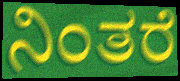
ನಿಂತರೆ